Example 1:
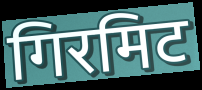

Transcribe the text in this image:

गिरमिट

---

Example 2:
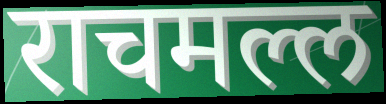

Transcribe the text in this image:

राचमल्ल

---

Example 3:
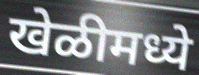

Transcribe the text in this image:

खेळीमध्ये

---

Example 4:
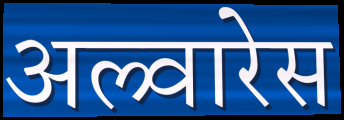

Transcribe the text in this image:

अल्वारेस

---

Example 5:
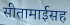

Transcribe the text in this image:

सीतामाईसह